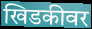
खिडकीवर